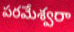
పరమేశ్వరా